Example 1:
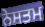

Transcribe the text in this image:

ਨੇਸਤਮ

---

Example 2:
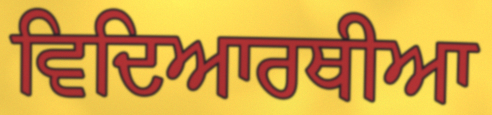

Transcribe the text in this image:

ਵਿਦਿਆਰਥੀਆ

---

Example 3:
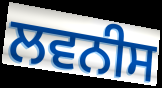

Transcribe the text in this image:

ਲਵਨੀਸ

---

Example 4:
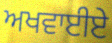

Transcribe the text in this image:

ਅਖਵਾਈਏ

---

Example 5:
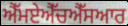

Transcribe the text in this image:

ਐੱਮਏਐੱਚਐੱਸਆਰ